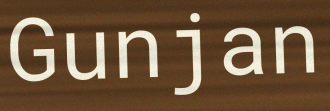
Gunjan